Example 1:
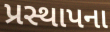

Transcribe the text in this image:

પ્રસ્થાપના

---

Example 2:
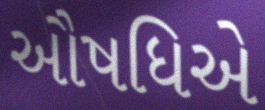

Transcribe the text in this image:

ઔષધિએ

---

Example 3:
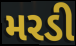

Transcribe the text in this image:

મરડી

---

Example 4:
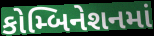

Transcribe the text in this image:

કોમ્બિનેશનમાં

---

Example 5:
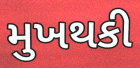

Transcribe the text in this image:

મુખથકી